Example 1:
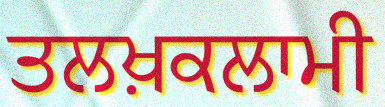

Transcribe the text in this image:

ਤਲਖ਼ਕਲਾਮੀ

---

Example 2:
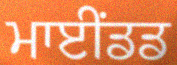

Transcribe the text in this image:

ਮਾਈਂਡਡ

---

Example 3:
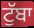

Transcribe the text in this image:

ਟੁੱਬਾ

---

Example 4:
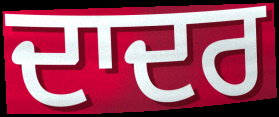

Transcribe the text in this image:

ਦਾਦਰ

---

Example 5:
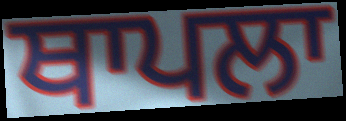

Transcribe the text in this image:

ਥਾਪਲਾ